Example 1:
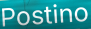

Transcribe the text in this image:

Postino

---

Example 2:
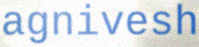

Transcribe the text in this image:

agnivesh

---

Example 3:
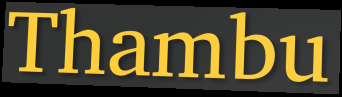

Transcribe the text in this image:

Thambu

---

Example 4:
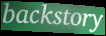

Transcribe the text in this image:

backstory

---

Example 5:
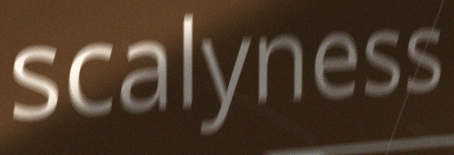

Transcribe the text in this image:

scalyness